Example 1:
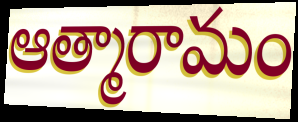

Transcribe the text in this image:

ఆత్మారామం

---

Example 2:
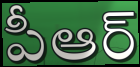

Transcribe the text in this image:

పీఆర్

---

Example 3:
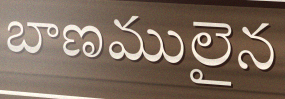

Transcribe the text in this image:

బాణములైన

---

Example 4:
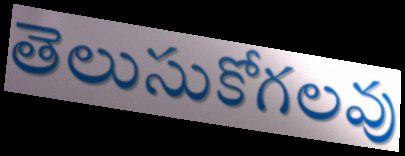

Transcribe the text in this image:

తెలుసుకోగలవు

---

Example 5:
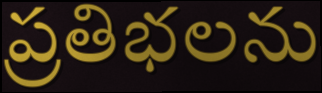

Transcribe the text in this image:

ప్రతిభలను